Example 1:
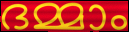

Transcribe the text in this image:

ദമ്മാം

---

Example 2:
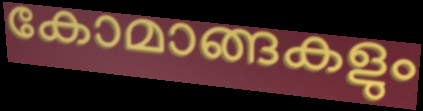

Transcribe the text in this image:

കോമാങ്ങകളും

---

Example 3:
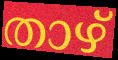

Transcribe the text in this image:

താഴ്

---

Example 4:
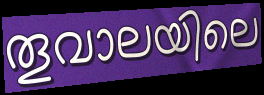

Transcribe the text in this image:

തൂവാലയിലെ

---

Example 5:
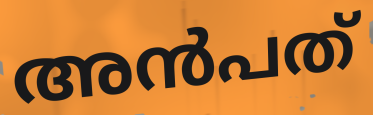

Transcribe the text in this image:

അൻപത്